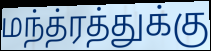
மந்த்ரத்துக்கு